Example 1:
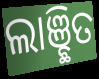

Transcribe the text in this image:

ଲାଞ୍ଛିତ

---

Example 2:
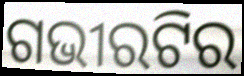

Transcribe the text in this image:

ଗଭୀରଟିର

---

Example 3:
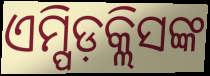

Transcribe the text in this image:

ଏମ୍ପିଡ଼କ୍ଲିସଙ୍କ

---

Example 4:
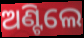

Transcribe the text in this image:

ଅଣ୍ଟିଲେ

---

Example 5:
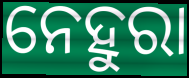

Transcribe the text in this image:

ନେହୁରା